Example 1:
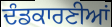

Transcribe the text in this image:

ਦੰਡਕਾਰਣੀਆਂ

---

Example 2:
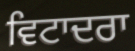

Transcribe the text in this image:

ਵਿਟਾਦਰਾ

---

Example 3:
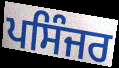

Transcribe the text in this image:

ਪਸਿੰਜਰ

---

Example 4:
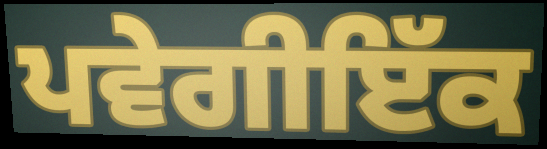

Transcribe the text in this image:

ਪਵੇਗੀਇੱਕ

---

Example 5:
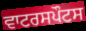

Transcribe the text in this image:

ਵਾਟਰਸਪੌਟਸ